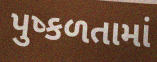
પુષ્કળતામાં